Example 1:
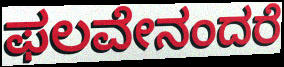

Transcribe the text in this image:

ಫಲವೇನಂದರೆ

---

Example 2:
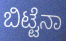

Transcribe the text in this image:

ಬಿಟ್ಟೆನಾ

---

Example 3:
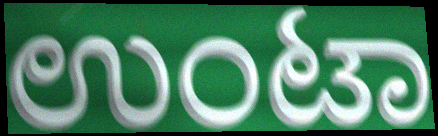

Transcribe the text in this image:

ಉಂಟಾ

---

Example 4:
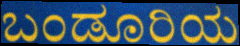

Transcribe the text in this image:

ಬಂಡೂರಿಯ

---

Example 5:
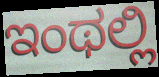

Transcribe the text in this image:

ಇಂಥಲ್ಲಿ